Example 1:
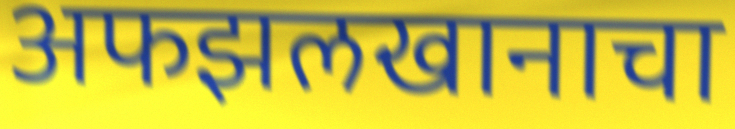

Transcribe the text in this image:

अफझलखानाचा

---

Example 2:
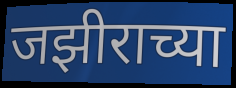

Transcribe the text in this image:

जझीराच्या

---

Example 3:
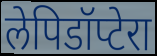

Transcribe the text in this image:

लेपिडॉप्टेरा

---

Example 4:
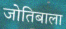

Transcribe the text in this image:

जोतिबाला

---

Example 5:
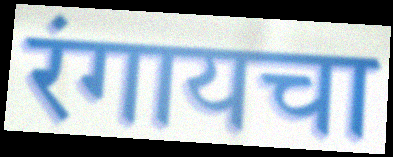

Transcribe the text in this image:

रंगायचा